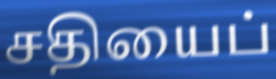
சதியைப்